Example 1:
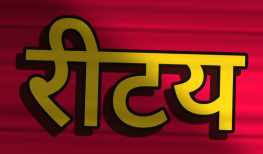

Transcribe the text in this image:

रीटय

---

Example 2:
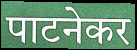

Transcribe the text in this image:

पाटनेकर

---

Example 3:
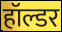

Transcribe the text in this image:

हॉल्डर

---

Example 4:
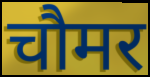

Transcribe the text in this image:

चौमर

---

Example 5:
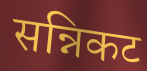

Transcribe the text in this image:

सन्निकट